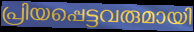
പ്രിയപ്പെട്ടവരുമായി